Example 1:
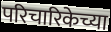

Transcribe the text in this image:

परिचारिकेच्या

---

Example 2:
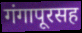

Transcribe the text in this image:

गंगापूरसह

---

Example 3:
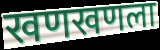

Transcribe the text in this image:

खणखणला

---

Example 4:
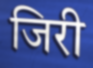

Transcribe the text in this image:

जिरी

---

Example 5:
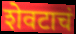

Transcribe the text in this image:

शेवटाचं